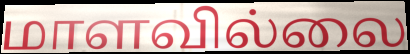
மாளவில்லை